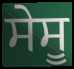
ਸੇਸੂ